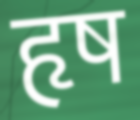
हृष